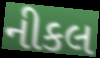
નીકલ